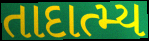
તાદાત્મ્ય